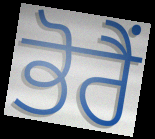
ਭੋਰੈਂ